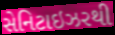
સેનિટાઇઝરથી